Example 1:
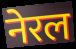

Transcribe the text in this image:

नेरल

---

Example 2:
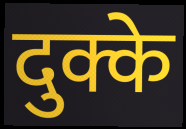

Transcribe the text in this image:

दुक्के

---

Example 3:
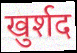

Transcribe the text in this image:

खुर्शद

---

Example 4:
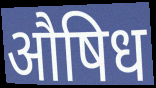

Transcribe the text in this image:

औषिध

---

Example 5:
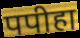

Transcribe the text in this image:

पपीहा